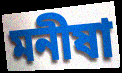
মনীষা